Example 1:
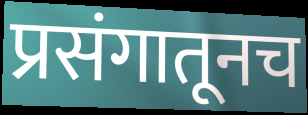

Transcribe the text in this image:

प्रसंगातूनच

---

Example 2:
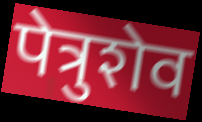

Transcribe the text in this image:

पेत्रुशेव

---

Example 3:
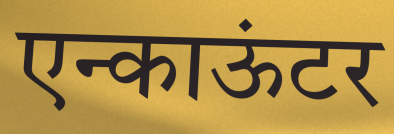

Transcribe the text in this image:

एन्काऊंटर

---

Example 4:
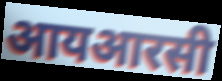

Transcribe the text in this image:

आयआरसी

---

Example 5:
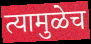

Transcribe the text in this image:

त्यामुळेच